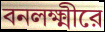
বনলক্ষ্মীরে